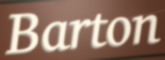
Barton